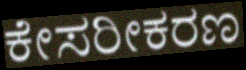
ಕೇಸರೀಕರಣ